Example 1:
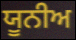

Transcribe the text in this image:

ਯੂਨੀਅ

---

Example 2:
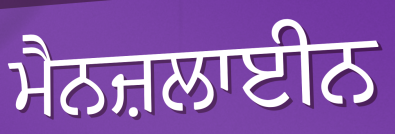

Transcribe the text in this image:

ਮੈਨਜ਼ਲਾਈਨ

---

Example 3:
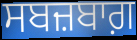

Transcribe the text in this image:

ਸਬਜ਼ਬਾਗ਼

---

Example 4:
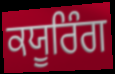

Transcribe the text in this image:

ਕਯੂਰਿੰਗ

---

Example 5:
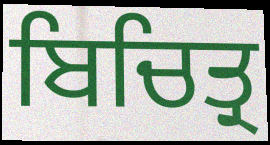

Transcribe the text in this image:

ਬਿਚਿਤ੍ਰ